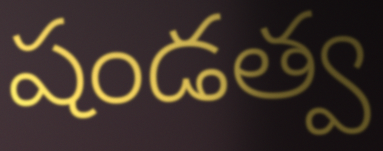
షండత్వ